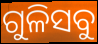
ଗୁଳିସବୁ